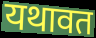
यथावत